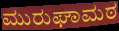
ಮುರುಘಾಮಠ